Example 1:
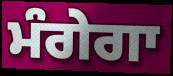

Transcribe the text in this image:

ਮੰਗੇਗਾ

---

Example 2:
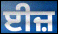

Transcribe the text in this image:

ਈਜ਼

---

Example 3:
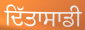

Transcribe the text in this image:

ਦਿੱਤਾਸਾਡੀ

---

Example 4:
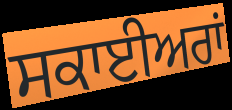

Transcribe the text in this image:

ਸਕਾਈਅਰਾਂ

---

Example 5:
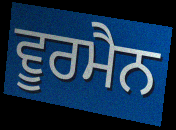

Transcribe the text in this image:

ਵੂਰਮੈਨ